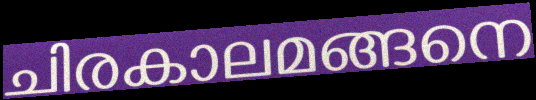
ചിരകാലമങ്ങനെ